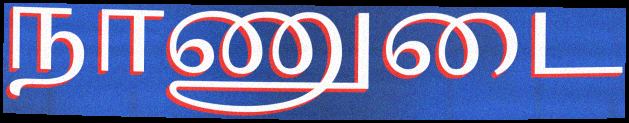
நாணுடை